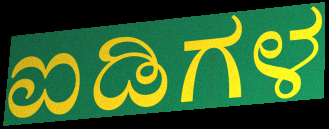
ಐಡಿಗಳ